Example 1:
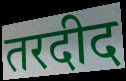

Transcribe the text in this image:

तरदीद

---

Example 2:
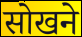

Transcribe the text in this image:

सोखने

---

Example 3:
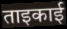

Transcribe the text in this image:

ताइकाई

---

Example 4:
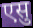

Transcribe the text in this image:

एसु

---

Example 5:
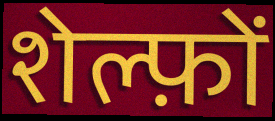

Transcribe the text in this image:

शेल्फ़ों